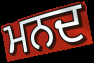
ਮਨਦ